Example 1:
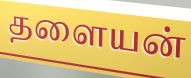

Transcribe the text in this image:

தளையன்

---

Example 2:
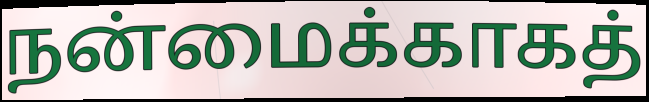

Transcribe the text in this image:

நன்மைக்காகத்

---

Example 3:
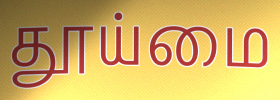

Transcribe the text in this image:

தூய்மை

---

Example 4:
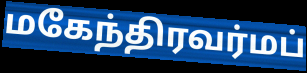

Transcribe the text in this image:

மகேந்திரவர்மப்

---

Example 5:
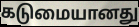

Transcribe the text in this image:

கடுமையானது